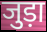
जुड़ा